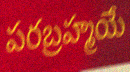
పరబ్రహ్మయే